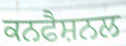
ਕਨਫੈਸ਼ਨਲ